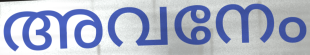
അവനേം